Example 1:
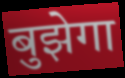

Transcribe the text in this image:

बुझेगा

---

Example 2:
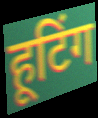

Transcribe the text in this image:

हूटिंग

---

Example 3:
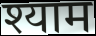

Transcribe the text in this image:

श्याम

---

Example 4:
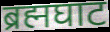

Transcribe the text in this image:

ब्रह्मघाट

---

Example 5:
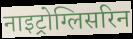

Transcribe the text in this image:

नाइट्रोग्लिसरिन